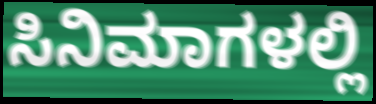
ಸಿನಿಮಾಗಳಲ್ಲಿ